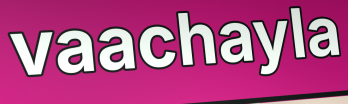
vaachayla